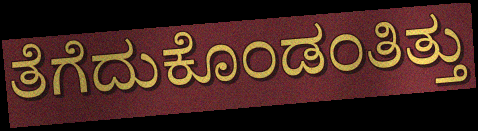
ತೆಗೆದುಕೊಂಡಂತಿತ್ತು